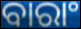
ବାରାଂ